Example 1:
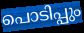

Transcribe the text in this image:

പൊടിപ്പും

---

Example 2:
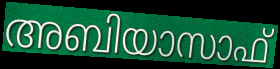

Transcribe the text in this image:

അബിയാസാഫ്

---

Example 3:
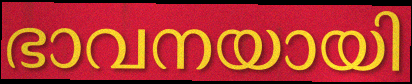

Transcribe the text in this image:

ഭാവനയായി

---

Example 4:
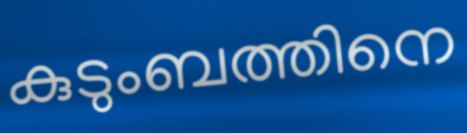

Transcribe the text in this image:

കുടുംബത്തിനെ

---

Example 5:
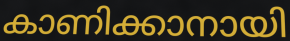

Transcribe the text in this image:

കാണിക്കാനായി